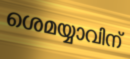
ശെമയ്യാവിന്